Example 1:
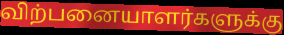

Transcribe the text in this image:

விற்பனையாளர்களுக்கு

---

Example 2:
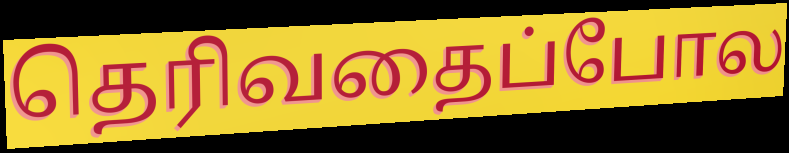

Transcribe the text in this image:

தெரிவதைப்போல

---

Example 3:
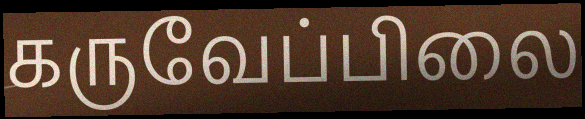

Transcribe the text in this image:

கருவேப்பிலை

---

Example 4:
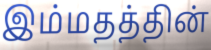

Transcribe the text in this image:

இம்மதத்தின்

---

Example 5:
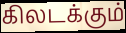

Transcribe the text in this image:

கிலடக்கும்